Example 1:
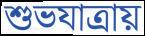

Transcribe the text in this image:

শুভযাত্রায়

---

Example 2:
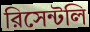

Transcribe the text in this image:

রিসেন্টলি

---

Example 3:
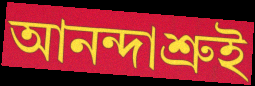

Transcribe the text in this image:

আনন্দাশ্রুই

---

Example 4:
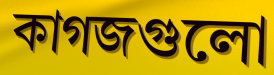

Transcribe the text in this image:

কাগজগুলো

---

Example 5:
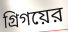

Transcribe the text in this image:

গ্রিগয়ের